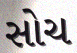
સોચ